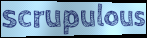
scrupulous